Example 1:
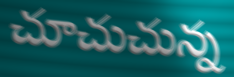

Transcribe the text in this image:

చూచుచున్న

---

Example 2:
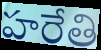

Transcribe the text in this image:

హరేతి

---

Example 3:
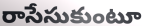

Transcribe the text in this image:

రాసేసుకుంటూ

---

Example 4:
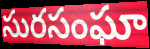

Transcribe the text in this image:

సురసంఘా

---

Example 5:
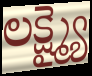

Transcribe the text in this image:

లక్ష్మ్యై